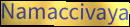
Namaccivaya